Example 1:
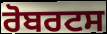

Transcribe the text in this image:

ਰੋਬਰਟਸ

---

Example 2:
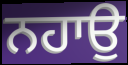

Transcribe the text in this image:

ਨਹਾਉ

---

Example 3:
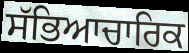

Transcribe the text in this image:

ਸੱਭਿਆਚਾਰਿਕ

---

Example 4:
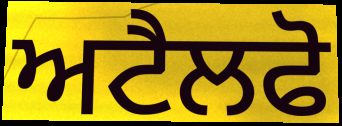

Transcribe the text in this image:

ਅਟੈਲਫੋ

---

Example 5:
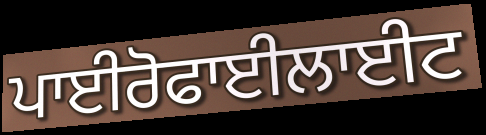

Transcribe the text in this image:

ਪਾਈਰੋਫਾਈਲਾਈਟ